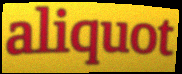
aliquot